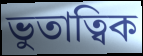
ভুতাত্বিক